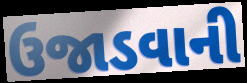
ઉજાડવાની